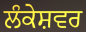
ਲੰਕੇਸ਼ਵਰ